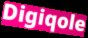
Digiqole